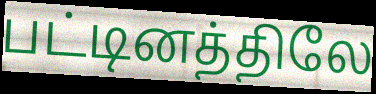
பட்டினத்திலே